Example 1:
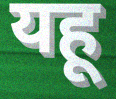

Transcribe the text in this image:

यहू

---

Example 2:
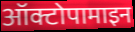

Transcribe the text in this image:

ऑक्टोपामाइन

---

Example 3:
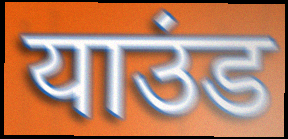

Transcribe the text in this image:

याउंड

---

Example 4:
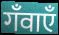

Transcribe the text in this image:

गँवाएँ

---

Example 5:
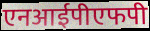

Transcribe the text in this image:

एनआईपीएफपी